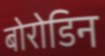
बोरोडिन